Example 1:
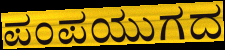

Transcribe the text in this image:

ಪಂಪಯುಗದ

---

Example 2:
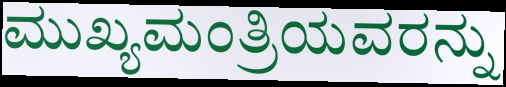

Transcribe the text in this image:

ಮುಖ್ಯಮಂತ್ರಿಯವರನ್ನು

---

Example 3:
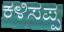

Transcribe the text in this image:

ಕಳಿಸಪ್ಪ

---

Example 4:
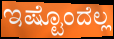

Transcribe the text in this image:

ಇಷ್ಟೊಂದೆಲ್ಲ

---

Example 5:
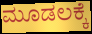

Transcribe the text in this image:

ಮೂಡಲಕ್ಕೆ